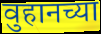
वुहानच्या